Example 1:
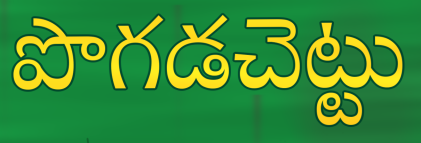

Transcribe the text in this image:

పొగడచెట్టు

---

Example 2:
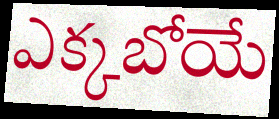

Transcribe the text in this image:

ఎక్కబోయే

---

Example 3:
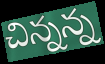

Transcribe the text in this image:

చిన్నన్న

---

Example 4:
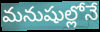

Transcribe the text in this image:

మనుషుల్లోనే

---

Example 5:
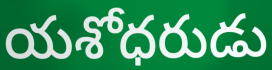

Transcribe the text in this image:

యశోధరుడు